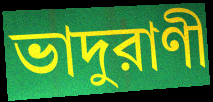
ভাদুরাণী